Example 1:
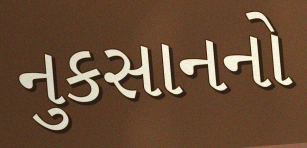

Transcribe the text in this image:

નુકસાનનો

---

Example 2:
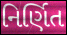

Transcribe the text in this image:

નિર્ણિત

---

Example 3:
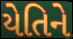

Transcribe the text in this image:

યેતિને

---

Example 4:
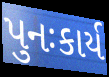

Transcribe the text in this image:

પુનઃકાર્ય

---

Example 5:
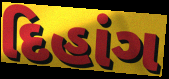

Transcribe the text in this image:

દિહાંગ